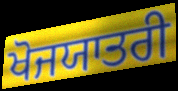
ਖੋਜਯਾਤਰੀ